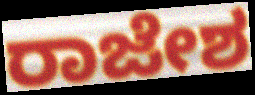
ರಾಜೇಶ